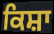
ਕਿਸ਼ਾ